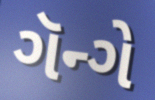
ગૅન્ગે